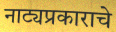
नाट्यप्रकाराचे